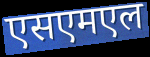
एसएमएल